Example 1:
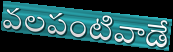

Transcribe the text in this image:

వలపంటివాడే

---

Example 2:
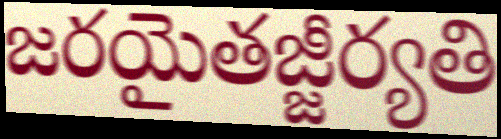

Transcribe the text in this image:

జరయైతజ్జీర్యతి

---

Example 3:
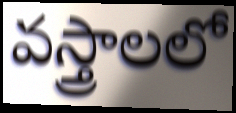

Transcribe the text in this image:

వస్త్రాలలో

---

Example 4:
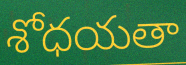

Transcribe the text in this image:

శోధయతా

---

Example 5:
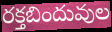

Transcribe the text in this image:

రక్తబిందువుల